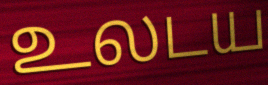
உலடய